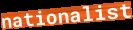
nationalist